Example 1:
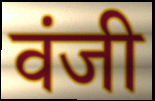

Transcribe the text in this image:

वंजी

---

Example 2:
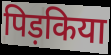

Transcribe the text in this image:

पिड़किया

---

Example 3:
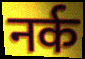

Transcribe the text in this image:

नर्क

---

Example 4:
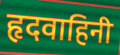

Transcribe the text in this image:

हृदवाहिनी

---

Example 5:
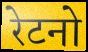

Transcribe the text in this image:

रेटनो